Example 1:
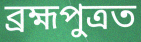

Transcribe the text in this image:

ব্ৰহ্মপুত্ৰত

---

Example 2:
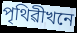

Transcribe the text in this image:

পৃথিৱীখনে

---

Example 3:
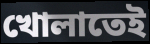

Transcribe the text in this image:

খোলাতেই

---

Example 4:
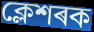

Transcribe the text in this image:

ক্লেশৰক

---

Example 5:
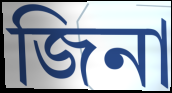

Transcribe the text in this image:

জিনা